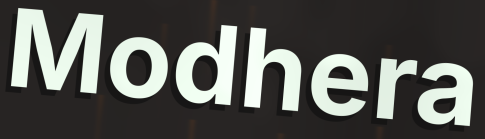
Modhera